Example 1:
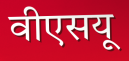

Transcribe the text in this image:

वीएसयू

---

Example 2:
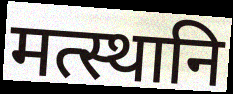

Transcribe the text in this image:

मत्स्थानि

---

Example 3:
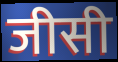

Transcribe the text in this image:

जीसी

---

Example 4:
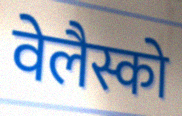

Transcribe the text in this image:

वेलैस्को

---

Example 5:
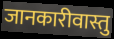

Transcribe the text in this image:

जानकारीवास्तु